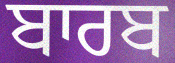
ਬਾਰਬ